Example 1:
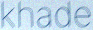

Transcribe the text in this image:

khade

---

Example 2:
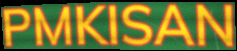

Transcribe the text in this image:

PMKISAN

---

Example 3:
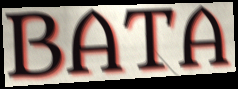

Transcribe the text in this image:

BATA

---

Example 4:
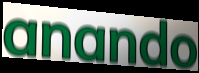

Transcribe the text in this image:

anando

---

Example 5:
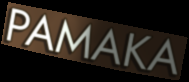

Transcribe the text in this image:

PAMAKA